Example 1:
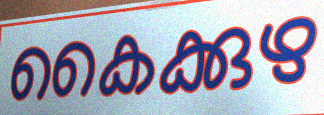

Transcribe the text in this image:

കൈക്കുഴ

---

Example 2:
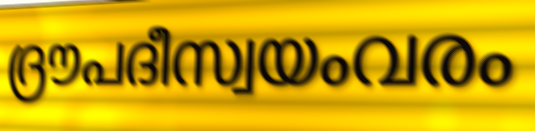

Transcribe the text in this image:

ദ്രൗപദീസ്വയംവരം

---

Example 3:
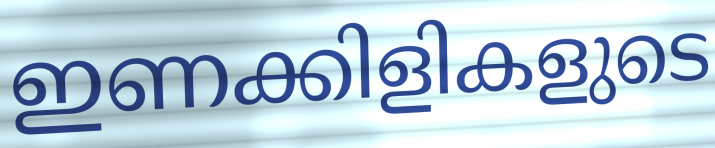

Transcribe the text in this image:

ഇണക്കിളികളുടെ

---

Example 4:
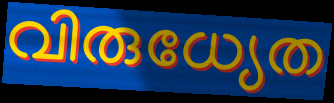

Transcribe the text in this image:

വിരുധ്യേത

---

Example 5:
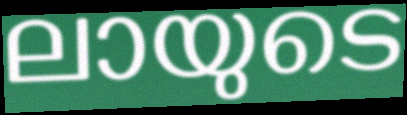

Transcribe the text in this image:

ലായുടെ